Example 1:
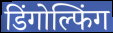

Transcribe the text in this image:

डिंगोल्फिंग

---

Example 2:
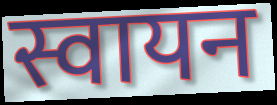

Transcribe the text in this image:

स्वायन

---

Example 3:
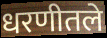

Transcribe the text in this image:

धरणीतले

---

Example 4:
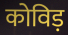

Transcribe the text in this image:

कोविड़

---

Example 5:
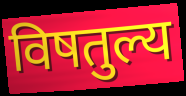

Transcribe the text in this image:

विषतुल्य